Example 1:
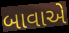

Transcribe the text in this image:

બાવાએ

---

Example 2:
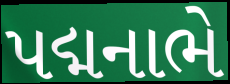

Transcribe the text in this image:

પદ્મનાભે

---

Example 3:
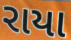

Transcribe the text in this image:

રાયા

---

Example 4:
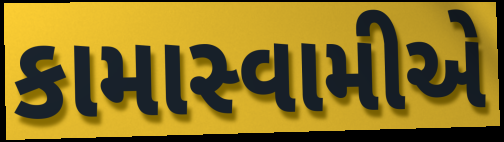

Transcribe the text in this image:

કામાસ્વામીએ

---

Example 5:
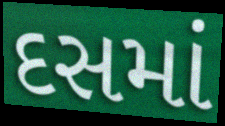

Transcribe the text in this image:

દસમાં